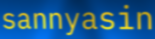
sannyasin